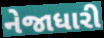
નેજાધારી